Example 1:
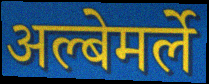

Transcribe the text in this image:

अल्बेमर्ले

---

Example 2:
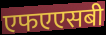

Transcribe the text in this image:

एफएएसबी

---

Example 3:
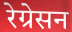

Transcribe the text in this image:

रेग्रेसन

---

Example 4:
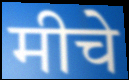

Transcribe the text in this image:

मीचे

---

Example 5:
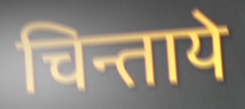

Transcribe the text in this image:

चिन्ताये